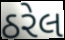
ઠરેલ